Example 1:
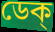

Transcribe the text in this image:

ডেক্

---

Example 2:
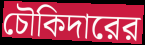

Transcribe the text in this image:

চৌকিদারের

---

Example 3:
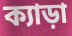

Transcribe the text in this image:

ক্যাড়া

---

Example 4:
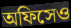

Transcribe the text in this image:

অফিসেও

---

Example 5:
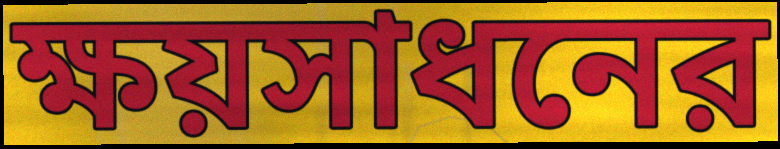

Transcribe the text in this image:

ক্ষয়সাধনের